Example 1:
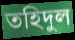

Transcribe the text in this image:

তহিদুল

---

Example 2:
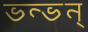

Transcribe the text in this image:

ভন্ভন্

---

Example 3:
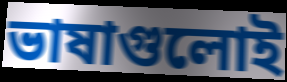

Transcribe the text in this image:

ভাষাগুলোই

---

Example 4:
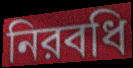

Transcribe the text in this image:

নিরবধি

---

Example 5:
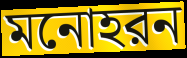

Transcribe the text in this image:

মনোহরন